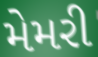
મેમરી